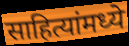
साहित्यांमध्ये